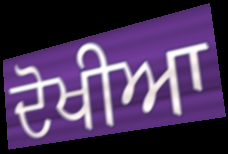
ਦੋਖੀਆ